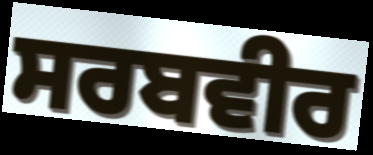
ਸਰਬਵੀਰ